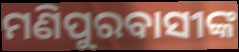
ମଣିପୁରବାସୀଙ୍କ